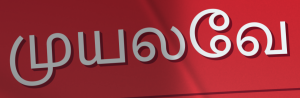
முயலவே